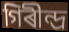
গিৰীন্দ্ৰ